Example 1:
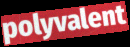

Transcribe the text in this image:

polyvalent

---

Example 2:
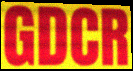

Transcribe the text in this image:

GDCR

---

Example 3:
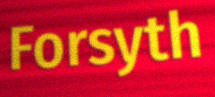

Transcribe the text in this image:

Forsyth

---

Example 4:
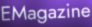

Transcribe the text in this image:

EMagazine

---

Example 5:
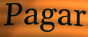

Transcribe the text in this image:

Pagar